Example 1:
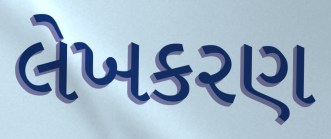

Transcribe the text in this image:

લેખકરણ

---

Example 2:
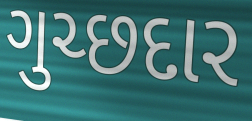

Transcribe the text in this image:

ગુચ્છદાર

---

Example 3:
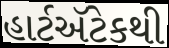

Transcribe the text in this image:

હાર્ટઍટેકથી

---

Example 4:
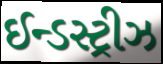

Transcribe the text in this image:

ઈન્ડસ્ટ્રીઝ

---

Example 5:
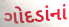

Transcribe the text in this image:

ગોદડાંનાં